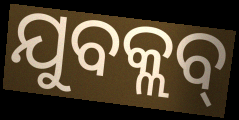
ଯୁବକ୍ଲବ୍